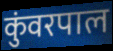
कुंवरपाल